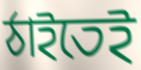
ঠাইতেই